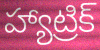
హ్యాట్రిక్